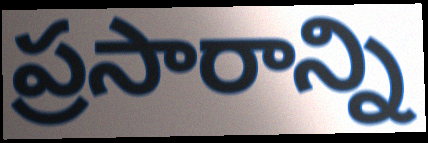
ప్రసారాన్ని